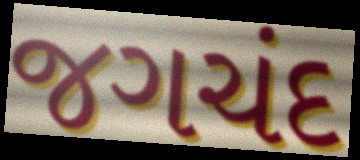
જગચંદ